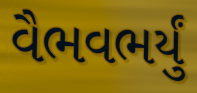
વૈભવભર્યું